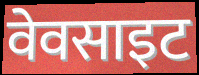
वेवसाइट